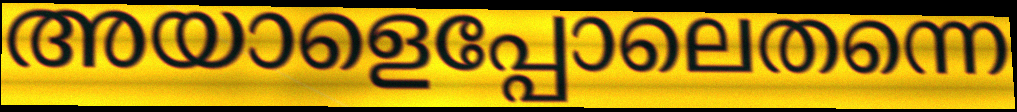
അയാളെപ്പോലെതന്നെ